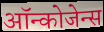
ऑन्कोजेन्स